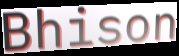
Bhison